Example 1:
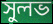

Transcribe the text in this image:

সুলভ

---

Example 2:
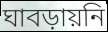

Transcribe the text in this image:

ঘাবড়ায়নি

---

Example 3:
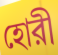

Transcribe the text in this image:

হোরী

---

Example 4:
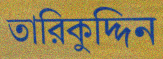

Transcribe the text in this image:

তারিকুদ্দিন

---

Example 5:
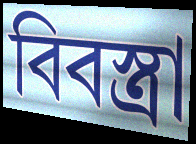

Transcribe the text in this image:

বিবস্ত্রা